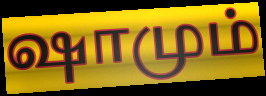
ஷாமும்